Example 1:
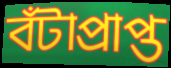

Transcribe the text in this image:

বঁটাপ্ৰাপ্ত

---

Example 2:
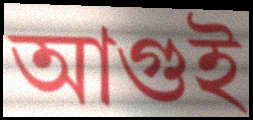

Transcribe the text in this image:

আগুই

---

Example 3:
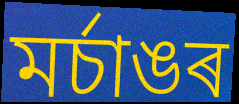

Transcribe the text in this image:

মৰ্চাঙৰ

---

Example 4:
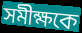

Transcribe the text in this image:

সমীক্ষকে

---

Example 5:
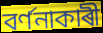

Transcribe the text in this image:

বৰ্ণনাকাৰী